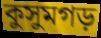
কুসুমগড়